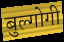
बुल्गोगी